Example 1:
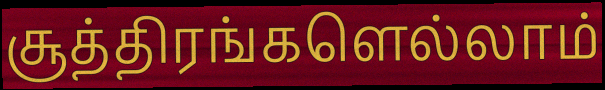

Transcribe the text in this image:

சூத்திரங்களெல்லாம்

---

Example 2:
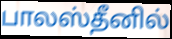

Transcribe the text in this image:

பாலஸ்தீனில்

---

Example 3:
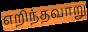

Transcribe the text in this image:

எறிந்தவாறு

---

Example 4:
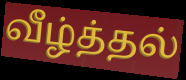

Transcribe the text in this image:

வீழ்த்தல்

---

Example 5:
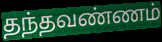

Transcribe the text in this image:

தந்தவண்ணம்